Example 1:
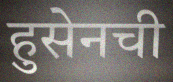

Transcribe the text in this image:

हुसेनची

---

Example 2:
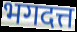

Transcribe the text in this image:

भगदत्त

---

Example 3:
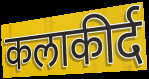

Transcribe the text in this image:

कलाकीर्द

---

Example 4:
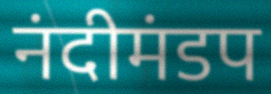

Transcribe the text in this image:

नंदीमंडप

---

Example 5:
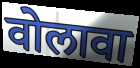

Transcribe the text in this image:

वोलावा